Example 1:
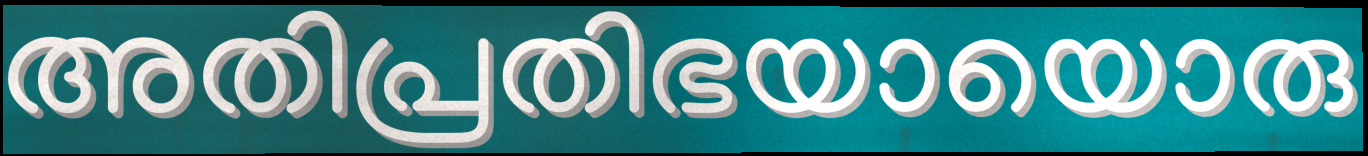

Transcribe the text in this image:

അതിപ്രതിഭയായൊരു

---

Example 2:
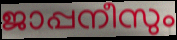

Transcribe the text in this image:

ജാപ്പനീസും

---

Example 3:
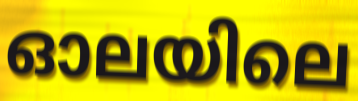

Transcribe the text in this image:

ഓലയിലെ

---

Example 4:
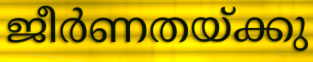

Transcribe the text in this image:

ജീർണതയ്ക്കു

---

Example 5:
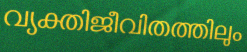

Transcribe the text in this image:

വ്യക്തിജീവിതത്തിലും